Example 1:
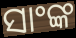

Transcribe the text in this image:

ସାଂଙ୍କ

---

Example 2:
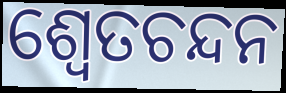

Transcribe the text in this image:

ଶ୍ୱେତଚନ୍ଦନ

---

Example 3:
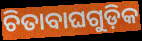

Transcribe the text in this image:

ଚିତାବାଘଗୁଡ଼ିକ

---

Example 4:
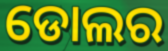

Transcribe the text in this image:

ଡୋଲର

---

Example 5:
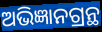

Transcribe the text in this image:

ଅଭିଜ୍ଞାନଗ୍ରନ୍ଥ